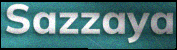
Sazzaya